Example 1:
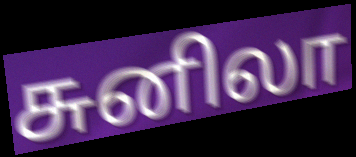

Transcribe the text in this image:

சுனிலா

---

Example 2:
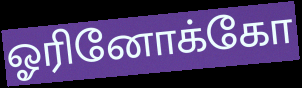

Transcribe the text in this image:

ஓரினோக்கோ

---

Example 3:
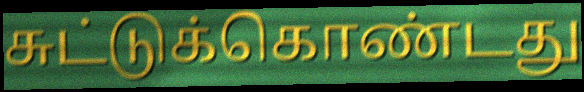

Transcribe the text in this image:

சுட்டுக்கொண்டது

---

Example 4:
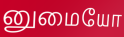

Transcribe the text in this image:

னுமையோ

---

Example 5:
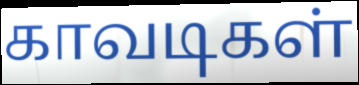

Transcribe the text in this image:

காவடிகள்